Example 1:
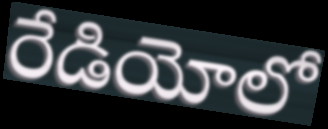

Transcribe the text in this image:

రేడియోలో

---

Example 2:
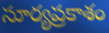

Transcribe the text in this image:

సూర్యప్రకాశం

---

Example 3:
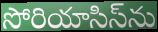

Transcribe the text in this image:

సోరియాసిస్‌ను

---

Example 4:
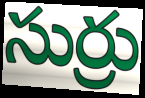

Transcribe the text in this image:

సుర్రు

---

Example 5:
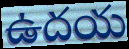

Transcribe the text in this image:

ఉదయ